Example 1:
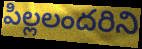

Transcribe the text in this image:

పిల్లలందరిని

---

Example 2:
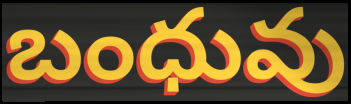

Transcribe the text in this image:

బంధువు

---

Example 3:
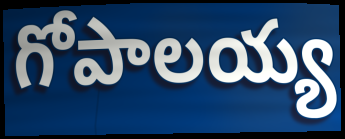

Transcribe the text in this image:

గోపాలయ్య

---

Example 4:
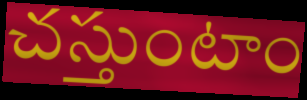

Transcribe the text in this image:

చస్తుంటాం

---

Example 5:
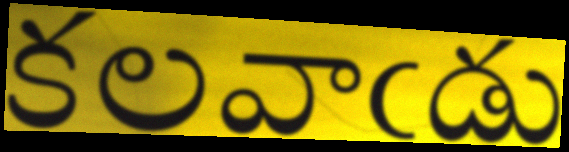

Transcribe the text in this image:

కలవాఁడు